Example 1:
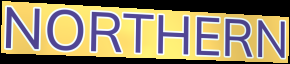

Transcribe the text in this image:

NORTHERN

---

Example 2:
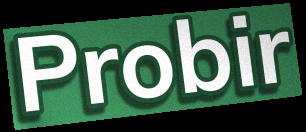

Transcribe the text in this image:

Probir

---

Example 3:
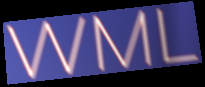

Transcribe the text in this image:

WML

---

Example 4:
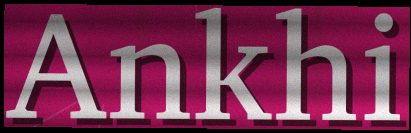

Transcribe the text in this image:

Ankhi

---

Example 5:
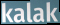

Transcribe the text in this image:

kalak